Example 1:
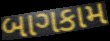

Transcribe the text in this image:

બાગકામ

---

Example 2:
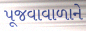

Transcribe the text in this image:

પૂજવાવાળાને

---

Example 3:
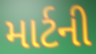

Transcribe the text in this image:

માર્ટની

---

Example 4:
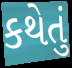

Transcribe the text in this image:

કથેતું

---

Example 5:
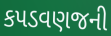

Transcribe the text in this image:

કપડવણજની